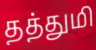
தத்துமி